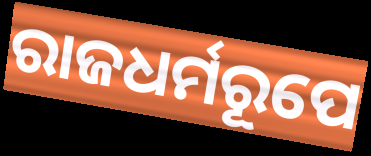
ରାଜଧର୍ମରୂପେ